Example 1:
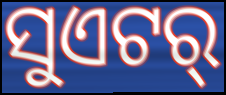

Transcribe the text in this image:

ସୁଏଟର୍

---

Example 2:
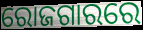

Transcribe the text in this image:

ରୋଜଗାରରେ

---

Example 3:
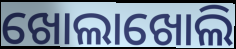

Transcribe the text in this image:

ଖୋଲାଖୋଲି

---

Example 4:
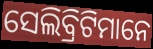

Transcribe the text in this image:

ସେଲିବ୍ରିଟିମାନେ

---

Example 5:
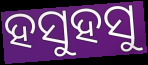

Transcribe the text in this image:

ହସୁହସୁ